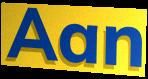
Aan